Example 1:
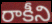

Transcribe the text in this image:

రాకీని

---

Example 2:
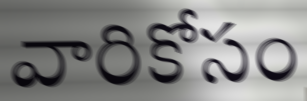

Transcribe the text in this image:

వారికోసం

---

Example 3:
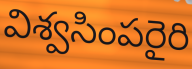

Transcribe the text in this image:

విశ్వసింపరైరి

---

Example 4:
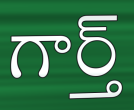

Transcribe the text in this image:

గార్త్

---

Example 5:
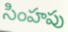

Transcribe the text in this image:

సింహపు